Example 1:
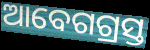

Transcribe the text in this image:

ଆବେଗଗ୍ରସ୍ତ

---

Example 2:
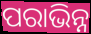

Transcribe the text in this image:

ପରାଭିନ୍ନ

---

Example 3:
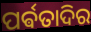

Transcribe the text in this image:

ପର୍ଵତାଦିର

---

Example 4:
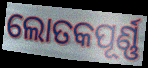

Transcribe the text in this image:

ଲୋତକପୂର୍ଣ୍ଣ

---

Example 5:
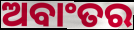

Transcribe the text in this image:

ଅବାଂତର